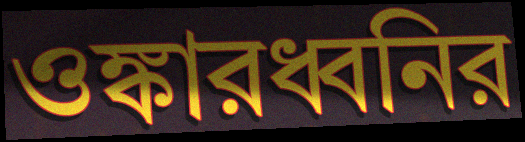
ওঙ্কারধ্বনির